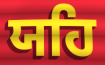
ਯਹਿ